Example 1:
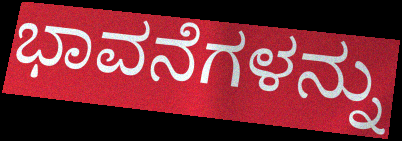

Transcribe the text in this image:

ಭಾವನೆಗಳನ್ನು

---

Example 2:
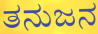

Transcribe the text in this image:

ತನುಜನ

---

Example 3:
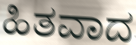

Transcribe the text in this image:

ಹಿತವಾದ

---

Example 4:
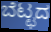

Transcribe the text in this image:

ಬೆಟ್ಟದ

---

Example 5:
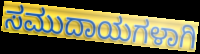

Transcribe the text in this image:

ಸಮುದಾಯಗಳಾಗಿ